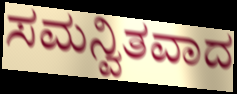
ಸಮನ್ವಿತವಾದ